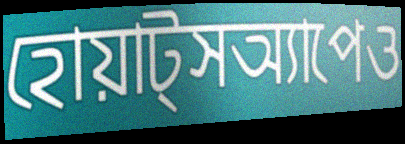
হোয়াট্‌সঅ্যাপেও